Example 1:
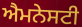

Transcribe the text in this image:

ਐਮਨੇਸਟੀ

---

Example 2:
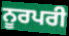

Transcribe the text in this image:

ਨੂਰਪਰੀ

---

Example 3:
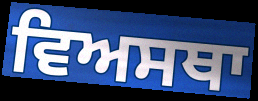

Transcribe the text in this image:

ਵਿਅਸਥਾ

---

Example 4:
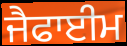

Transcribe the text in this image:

ਜੈਫਾਈਮ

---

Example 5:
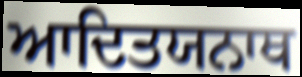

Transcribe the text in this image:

ਆਦਿਤਯਨਾਥ